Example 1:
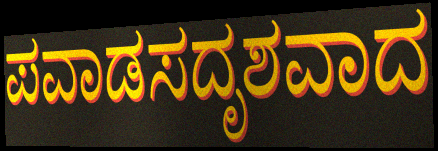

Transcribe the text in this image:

ಪವಾಡಸದೃಶವಾದ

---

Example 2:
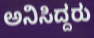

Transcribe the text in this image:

ಅನಿಸಿದ್ದರು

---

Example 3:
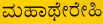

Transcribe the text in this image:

ಮಹಾಥೇರೇಹಿ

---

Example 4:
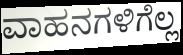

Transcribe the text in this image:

ವಾಹನಗಳಿಗೆಲ್ಲ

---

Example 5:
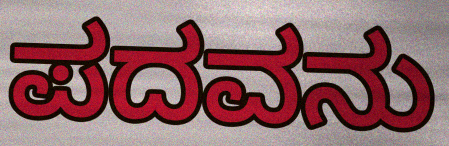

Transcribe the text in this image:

ಪದವನು